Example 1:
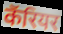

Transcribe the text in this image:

कॅरियर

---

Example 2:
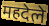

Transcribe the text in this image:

महदेले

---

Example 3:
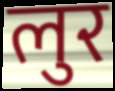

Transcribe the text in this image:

लुर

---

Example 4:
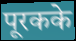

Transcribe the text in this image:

पूरकके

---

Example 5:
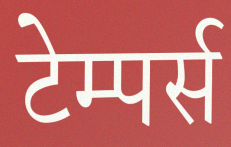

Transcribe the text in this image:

टेम्पर्स